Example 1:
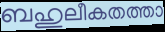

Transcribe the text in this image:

ബഹുലീകതത്താ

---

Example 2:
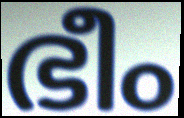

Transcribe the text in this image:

ഭീം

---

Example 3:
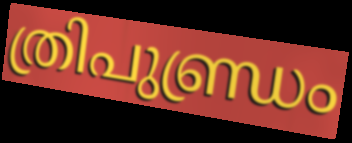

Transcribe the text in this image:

ത്രിപുണ്ഡ്രം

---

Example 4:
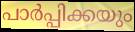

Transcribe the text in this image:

പാർപ്പിക്കയും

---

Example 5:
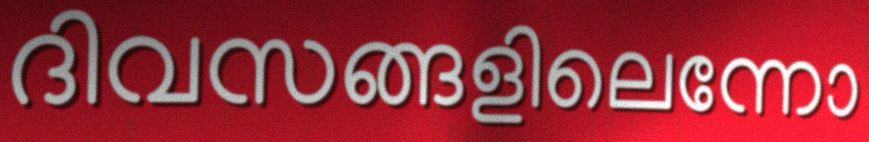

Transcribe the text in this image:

ദിവസങ്ങളിലെന്നോ